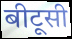
बीटूसी